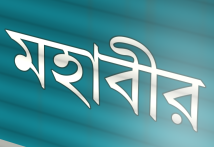
মহাবীর